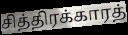
சித்திரக்காரத்